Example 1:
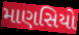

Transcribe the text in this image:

માણસિયો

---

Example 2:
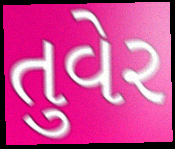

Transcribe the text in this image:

તુવેર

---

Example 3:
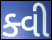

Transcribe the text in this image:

ક્વી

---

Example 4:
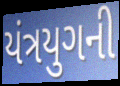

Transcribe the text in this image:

યંત્રયુગની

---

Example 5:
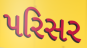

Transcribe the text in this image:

પરિસર